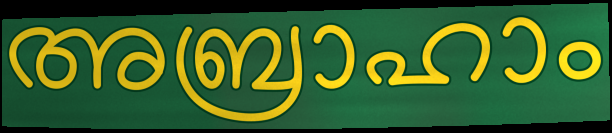
അബ്രാഹാം